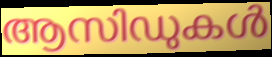
ആസിഡുകൾ